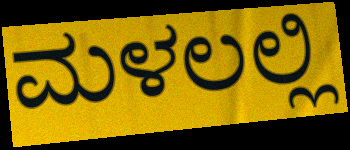
ಮಳಲಲ್ಲಿ